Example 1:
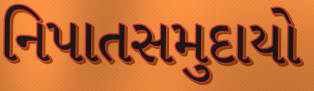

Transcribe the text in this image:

નિપાતસમુદાયો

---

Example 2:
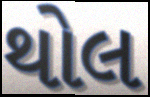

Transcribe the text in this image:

થોલ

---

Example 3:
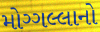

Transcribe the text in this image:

મોગ્ગલ્લાનો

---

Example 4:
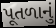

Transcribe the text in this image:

પૂતળાનું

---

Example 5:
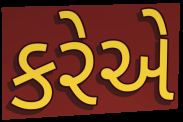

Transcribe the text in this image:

કરેએ